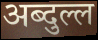
अब्दुल्ल